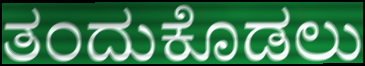
ತಂದುಕೊಡಲು